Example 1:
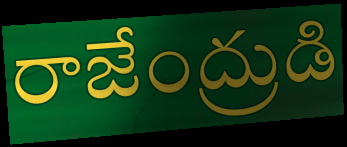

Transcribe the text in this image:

రాజేంద్రుడి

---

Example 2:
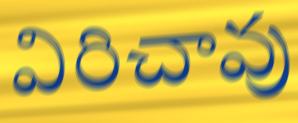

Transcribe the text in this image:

విరిచావు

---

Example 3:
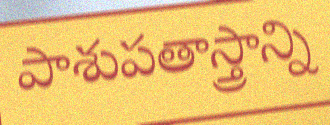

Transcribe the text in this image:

పాశుపతాస్త్రాన్ని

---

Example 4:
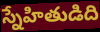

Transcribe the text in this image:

స్నేహితుడిది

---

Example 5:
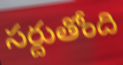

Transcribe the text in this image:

సర్దుతోంది